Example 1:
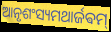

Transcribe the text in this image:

ଆନୃଶଂସ୍ୟମଥାର୍ଜଵମ୍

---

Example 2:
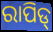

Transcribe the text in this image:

ରାପିଡ୍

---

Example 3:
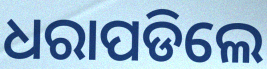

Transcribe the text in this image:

ଧରାପଡିଲେ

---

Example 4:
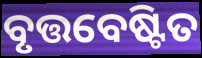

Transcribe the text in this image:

ବୃତ୍ତବେଷ୍ଟିତ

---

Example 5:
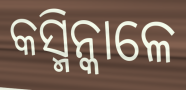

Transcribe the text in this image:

କସ୍ମିନ୍କାଳେ